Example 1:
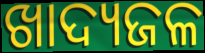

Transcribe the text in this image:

ଖାଦ୍ୟଜଳ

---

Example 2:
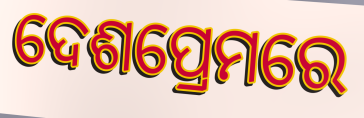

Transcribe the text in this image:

ଦେଶପ୍ରେମରେ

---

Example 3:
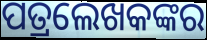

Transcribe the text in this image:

ପତ୍ରଲେଖକଙ୍କର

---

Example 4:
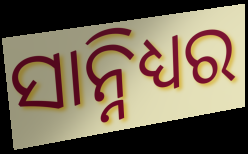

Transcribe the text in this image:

ସାନ୍ନିଧ୍ୟର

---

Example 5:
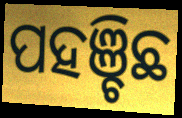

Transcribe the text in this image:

ପହଞ୍ଚିଛ